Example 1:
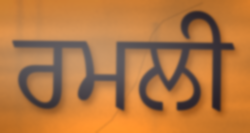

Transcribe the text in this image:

ਰਮਲੀ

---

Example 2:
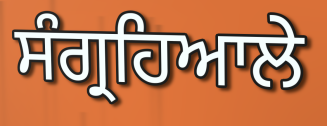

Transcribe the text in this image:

ਸੰਗ੍ਰਹਿਆਲੇ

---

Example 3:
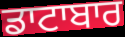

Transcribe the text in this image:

ਡਾਟਾਬਾਰ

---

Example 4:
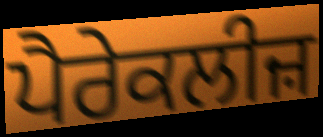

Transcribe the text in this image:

ਪੈਰੇਕਲੀਜ਼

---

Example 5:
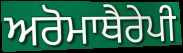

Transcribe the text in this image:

ਅਰੋਮਾਥੈਰੇਪੀ